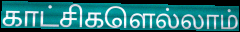
காட்சிகளெல்லாம்